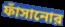
ফাঁসানোর